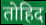
तोहिद